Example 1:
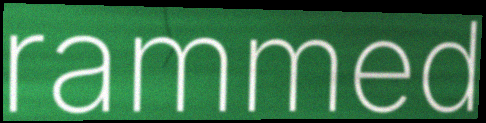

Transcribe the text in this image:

rammed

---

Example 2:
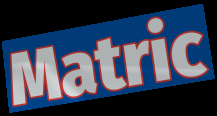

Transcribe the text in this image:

Matric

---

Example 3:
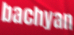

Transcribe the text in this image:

bachyan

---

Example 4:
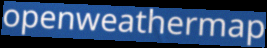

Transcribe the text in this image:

openweathermap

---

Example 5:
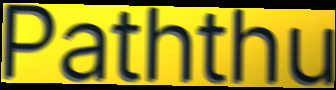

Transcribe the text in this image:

Paththu